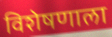
विशेषणाला